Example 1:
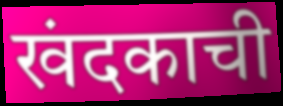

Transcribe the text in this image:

खंदकाची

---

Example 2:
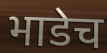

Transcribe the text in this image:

भाडेच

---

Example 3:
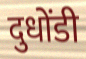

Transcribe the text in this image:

दुधोंडी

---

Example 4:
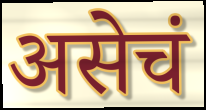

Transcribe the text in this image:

असेचं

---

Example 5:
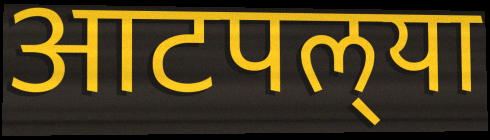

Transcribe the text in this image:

आटपल्या